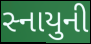
સ્નાયુની